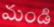
మండి